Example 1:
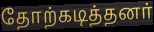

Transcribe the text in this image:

தோற்கடித்தனர்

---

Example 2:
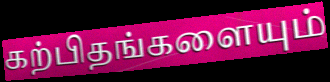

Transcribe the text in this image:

கற்பிதங்களையும்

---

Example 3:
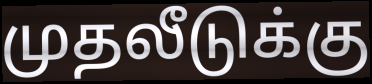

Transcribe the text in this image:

முதலீடுக்கு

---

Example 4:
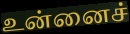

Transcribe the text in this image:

உன்னைச்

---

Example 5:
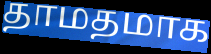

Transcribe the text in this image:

தாமதமாக